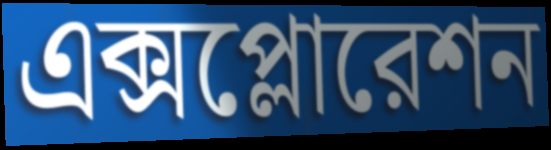
এক্সপ্লোরেশন